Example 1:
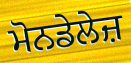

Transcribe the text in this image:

ਮੋਨਡੇਲੇਜ਼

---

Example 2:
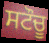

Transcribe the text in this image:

ਸਟੌਚੂ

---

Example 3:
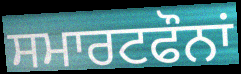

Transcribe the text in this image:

ਸਮਾਰਟਫੌਨਾਂ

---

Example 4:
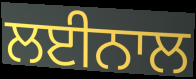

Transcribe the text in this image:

ਲਈਨਾਲ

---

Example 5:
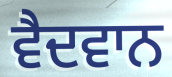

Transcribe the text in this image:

ਵੈਦਵਾਨ